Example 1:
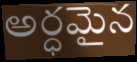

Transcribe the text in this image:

అర్ధమైన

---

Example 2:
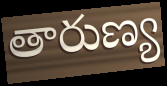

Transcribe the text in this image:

తారుణ్య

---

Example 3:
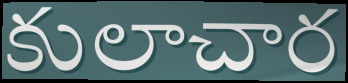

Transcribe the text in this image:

కులాచార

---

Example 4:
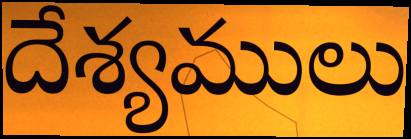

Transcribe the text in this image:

దేశ్యములు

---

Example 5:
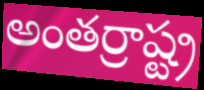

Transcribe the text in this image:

అంతర్రాష్ట్ర